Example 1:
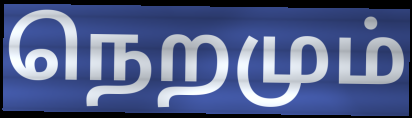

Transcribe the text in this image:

நெறமும்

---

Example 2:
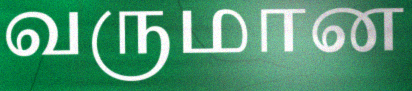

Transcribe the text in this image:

வருமான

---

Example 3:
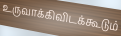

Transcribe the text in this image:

உருவாக்கிவிடக்கூடும்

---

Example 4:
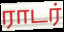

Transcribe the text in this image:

ராடர்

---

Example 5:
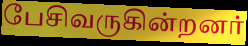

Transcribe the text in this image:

பேசிவருகின்றனர்